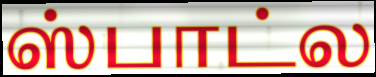
ஸ்பாட்ல